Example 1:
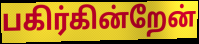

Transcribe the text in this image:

பகிர்கின்றேன்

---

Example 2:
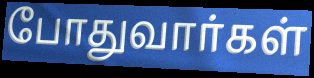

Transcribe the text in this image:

போதுவார்கள்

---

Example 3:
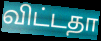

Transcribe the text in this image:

விட்டதா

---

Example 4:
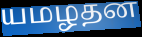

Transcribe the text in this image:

யமழதன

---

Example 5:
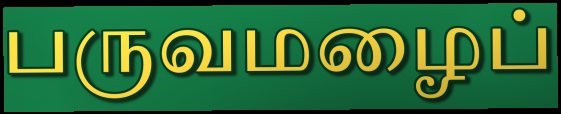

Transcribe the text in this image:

பருவமழைப்